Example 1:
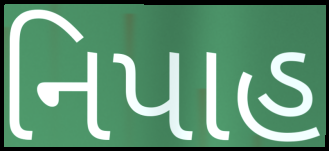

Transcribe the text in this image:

નિપાહ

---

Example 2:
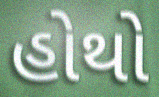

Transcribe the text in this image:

હોથો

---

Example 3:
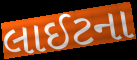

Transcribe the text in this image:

લાઈટના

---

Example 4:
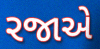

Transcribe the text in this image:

રજાએ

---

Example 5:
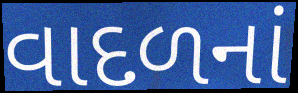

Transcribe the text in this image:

વાદળનાં